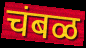
चंबळ